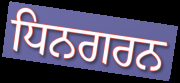
ਧਿਨਗਰਨ